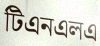
টিএনএলএ